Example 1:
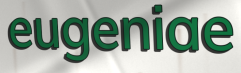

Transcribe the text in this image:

eugeniae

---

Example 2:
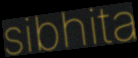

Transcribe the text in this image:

sibhita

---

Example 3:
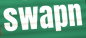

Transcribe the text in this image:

swapn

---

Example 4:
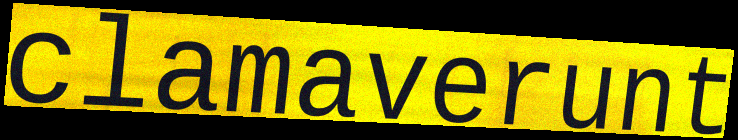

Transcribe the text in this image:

clamaverunt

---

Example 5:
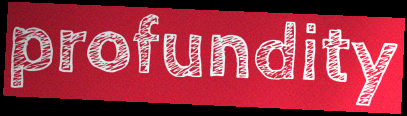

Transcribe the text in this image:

profundity